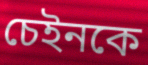
চেইনকে